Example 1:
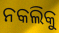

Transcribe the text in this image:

ନକଲିକୁ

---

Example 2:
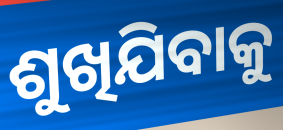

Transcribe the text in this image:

ଶୁଖିଯିବାକୁ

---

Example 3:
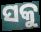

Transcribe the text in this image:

ସକୁ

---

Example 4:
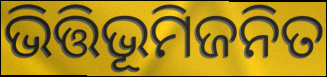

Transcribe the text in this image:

ଭିତ୍ତିଭୂମିଜନିତ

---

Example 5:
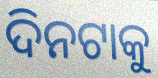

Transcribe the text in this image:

ଦିନଟାକୁ